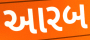
આરબ